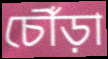
চৌঁড়া